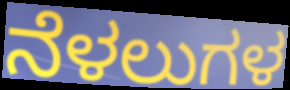
ನೆಳಲುಗಳ